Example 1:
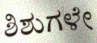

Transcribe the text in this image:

ಶಿಶುಗಳೇ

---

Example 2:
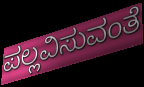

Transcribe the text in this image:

ಪಲ್ಲವಿಸುವಂತೆ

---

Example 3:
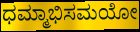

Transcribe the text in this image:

ಧಮ್ಮಾಭಿಸಮಯೋ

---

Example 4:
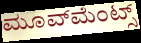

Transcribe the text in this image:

ಮೂವ್‍ಮೆಂಟ್ಸ್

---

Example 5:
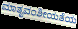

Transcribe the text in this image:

ಮಾತೃವಂಶೀಯತೆಯ